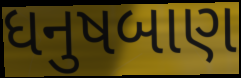
ધનુષબાણ